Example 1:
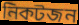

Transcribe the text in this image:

নিকটজন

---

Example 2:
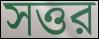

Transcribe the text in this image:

সত্তর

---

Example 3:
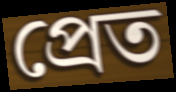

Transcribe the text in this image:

প্রেত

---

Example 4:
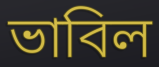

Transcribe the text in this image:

ভাবিল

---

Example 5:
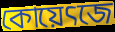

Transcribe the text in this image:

কোয়েৎজে